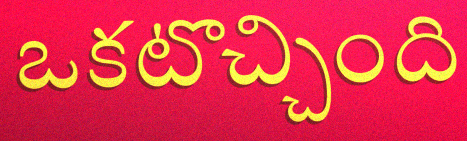
ఒకటొచ్చింది